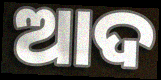
ଆଦ